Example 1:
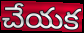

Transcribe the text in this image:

చేయక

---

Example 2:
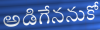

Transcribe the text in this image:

అడిగేననుకో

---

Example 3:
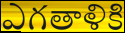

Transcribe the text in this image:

ఎగతాళికి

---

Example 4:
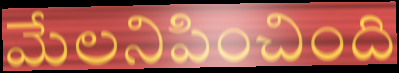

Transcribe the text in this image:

మేలనిపించింది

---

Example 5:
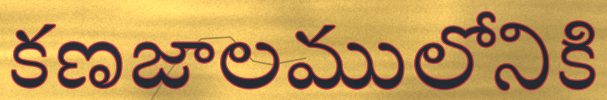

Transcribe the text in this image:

కణజాలములోనికి